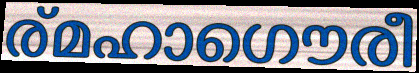
ര്മഹാഗൌരീ